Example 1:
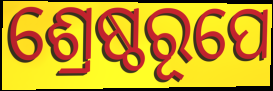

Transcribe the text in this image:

ଶ୍ରେଷ୍ଠରୂପେ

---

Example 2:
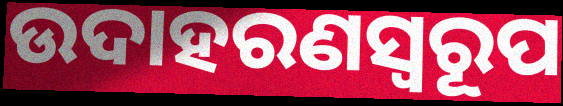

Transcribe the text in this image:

ଉଦାହରଣସ୍ୱରୂପ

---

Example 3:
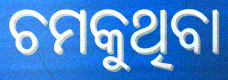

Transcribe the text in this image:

ଚମକୁଥିବା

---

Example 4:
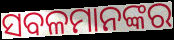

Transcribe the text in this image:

ସବଳମାନଙ୍କର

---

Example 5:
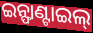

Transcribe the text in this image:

ଇନ୍ଫାଣ୍ଟାଇଲ୍